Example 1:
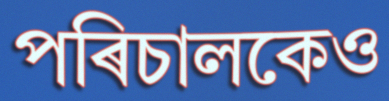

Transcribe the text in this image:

পৰিচালকেও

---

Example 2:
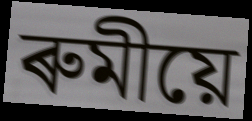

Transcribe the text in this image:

ৰুমীয়ে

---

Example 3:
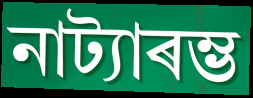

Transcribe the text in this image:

নাট্যাৰম্ভ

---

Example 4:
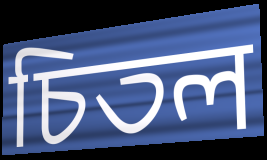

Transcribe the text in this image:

চিতল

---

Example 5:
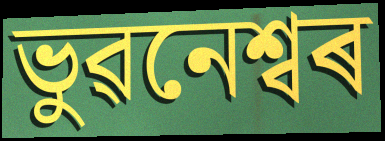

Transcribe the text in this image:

ভুৱনেশ্বৰ